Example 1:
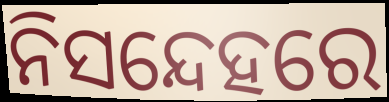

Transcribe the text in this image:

ନିସନ୍ଦେହରେ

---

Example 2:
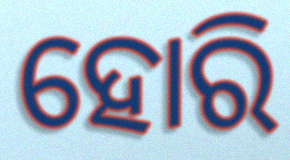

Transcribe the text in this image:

ହୋରି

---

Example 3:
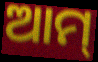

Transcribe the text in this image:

ଆମ୍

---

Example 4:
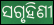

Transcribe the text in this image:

ସଗୃହିଣୀ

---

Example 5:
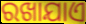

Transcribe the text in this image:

ରଖାଯାଏ